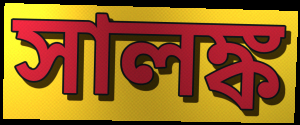
সালঙ্ক